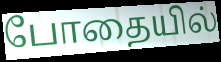
போதையில்